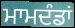
ਮਾਮਦੰਡਾਂ